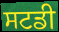
ਸਟਡੀ